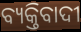
ବ୍ୟକ୍ତିବାଦୀ